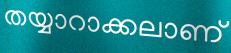
തയ്യാറാക്കലാണ്